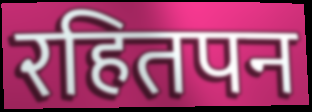
रहितपन